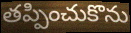
తప్పించుకొను